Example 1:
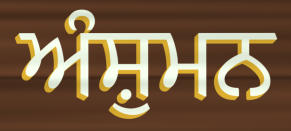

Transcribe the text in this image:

ਅੰਸ਼ੁਮਨ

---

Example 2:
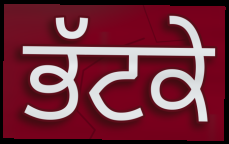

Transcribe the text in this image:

ਭੱਟਕੇ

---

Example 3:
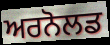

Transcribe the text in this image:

ਅਰਨੋਲਡ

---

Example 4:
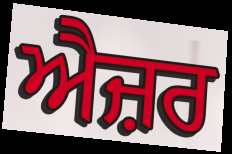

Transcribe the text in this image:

ਐਜ਼ਰ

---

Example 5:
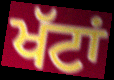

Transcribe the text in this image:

ਖੱਟਾਂ